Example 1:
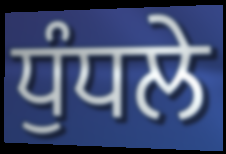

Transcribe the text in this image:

ਧੁੰਧਲੇ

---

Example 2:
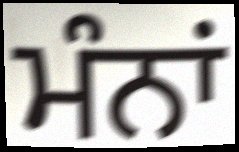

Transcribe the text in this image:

ਮੰਨਾਂ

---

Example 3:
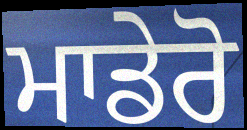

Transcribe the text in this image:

ਮਾਡੇਰੋ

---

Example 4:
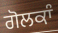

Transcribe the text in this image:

ਗੋਲਕਾੰ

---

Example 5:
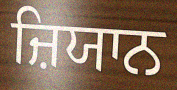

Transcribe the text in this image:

ਜ਼ਿਯਾਨ